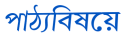
পাঠ্যবিষয়ে